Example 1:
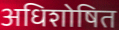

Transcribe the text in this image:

अधिशोषित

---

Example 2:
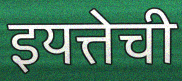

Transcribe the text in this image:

इयत्तेची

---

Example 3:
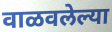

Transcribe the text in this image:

वाळवलेल्या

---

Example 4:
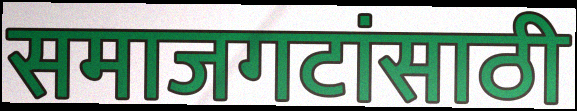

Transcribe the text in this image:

समाजगटांसाठी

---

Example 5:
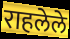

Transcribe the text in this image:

राहलेले